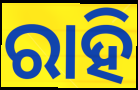
ରାହି